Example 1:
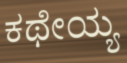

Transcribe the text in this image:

ಕಥೇಯ್ಯ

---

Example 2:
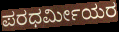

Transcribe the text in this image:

ಪರಧರ್ಮೀಯರ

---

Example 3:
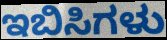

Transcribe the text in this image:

ಇಬಿಸಿಗಳು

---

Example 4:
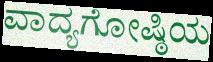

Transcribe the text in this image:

ವಾದ್ಯಗೋಷ್ಠಿಯ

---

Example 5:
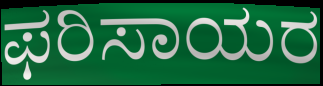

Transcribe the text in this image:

ಫರಿಸಾಯರ